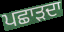
ਪਛਾੜਦਾ